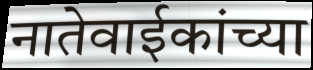
नातेवाईकांच्या